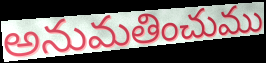
అనుమతించుము